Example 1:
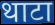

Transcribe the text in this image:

थाटा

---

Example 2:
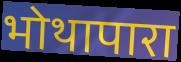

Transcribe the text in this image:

भोथापारा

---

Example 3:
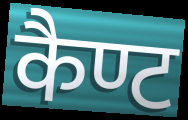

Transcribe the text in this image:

कैण्ट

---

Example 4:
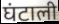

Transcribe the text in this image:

घंटाली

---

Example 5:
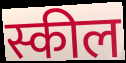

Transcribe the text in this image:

स्‍कील